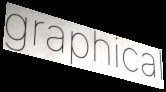
graphical